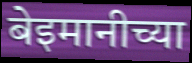
बेइमानीच्या